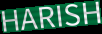
HARISH